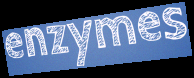
enzymes